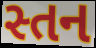
સ્તન